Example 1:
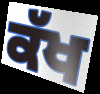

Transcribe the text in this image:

ਕੱਖ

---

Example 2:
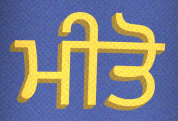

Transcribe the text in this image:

ਮੀਤੋ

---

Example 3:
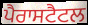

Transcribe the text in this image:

ਪੈਰਾਸਟੈਟਲ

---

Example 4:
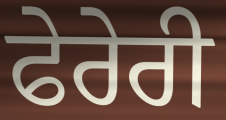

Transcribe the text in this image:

ਫੇਰੇਰੀ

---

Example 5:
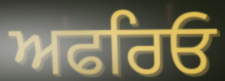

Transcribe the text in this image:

ਅਫਰਿਓ